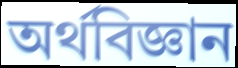
অৰ্থবিজ্ঞান